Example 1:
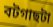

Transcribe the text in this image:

বটগাছটা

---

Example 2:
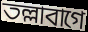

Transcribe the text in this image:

তল্লাবাগে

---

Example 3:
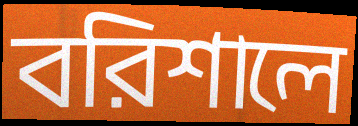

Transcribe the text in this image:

বরিশালে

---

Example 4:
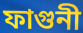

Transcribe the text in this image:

ফাগুনী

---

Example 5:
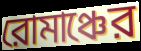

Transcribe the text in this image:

রোমাঞ্চের